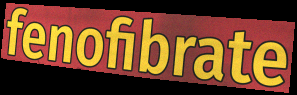
fenofibrate